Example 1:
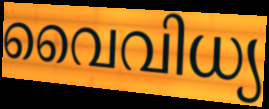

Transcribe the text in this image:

വൈവിധ്യ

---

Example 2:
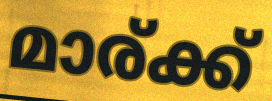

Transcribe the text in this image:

മാര്ക്ക്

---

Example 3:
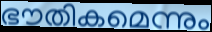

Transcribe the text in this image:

ഭൗതികമെന്നും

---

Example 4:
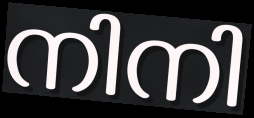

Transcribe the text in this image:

നിനി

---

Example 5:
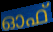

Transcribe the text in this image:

ഓഫ്